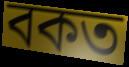
বকত